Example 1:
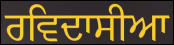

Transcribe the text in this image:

ਰਵਿਦਾਸੀਆ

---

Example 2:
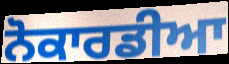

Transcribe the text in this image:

ਨੋਕਾਰਡੀਆ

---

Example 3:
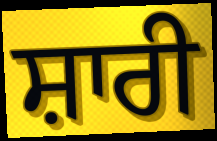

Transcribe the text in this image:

ਸ਼ਾਰੀ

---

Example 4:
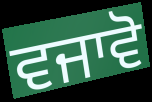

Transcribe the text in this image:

ਵਜਾਵੋ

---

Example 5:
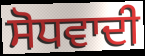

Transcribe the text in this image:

ਸੋਧਵਾਦੀ